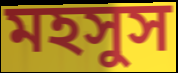
মহসুস